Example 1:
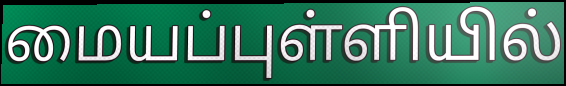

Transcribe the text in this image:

மையப்புள்ளியில்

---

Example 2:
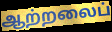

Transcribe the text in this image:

ஆற்றலைப்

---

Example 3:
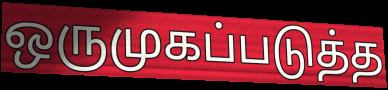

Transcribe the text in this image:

ஒருமுகப்படுத்த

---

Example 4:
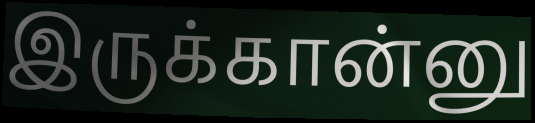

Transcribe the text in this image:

இருக்கான்னு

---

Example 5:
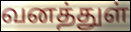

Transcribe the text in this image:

வனத்துள்